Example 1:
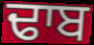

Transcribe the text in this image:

ਢਾਬ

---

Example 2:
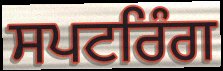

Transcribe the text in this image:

ਸਪਟਰਿੰਗ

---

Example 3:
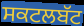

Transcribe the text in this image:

ਸਕਟਲਬੱਟ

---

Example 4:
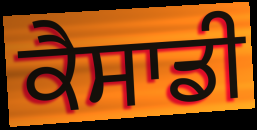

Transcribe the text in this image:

ਕੈਸਾਡੀ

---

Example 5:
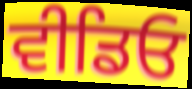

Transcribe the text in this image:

ਵੀਡਿਓ